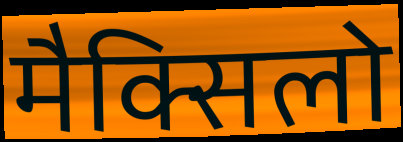
मैक्सिलो